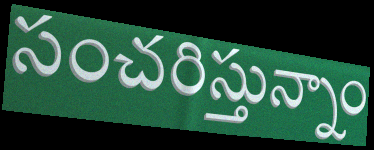
సంచరిస్తున్నాం